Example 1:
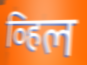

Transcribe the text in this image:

व्हिल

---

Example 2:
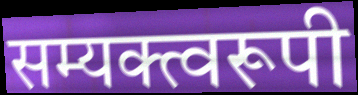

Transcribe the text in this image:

सम्यक्त्वरूपी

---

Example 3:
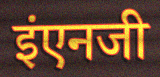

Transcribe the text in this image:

इंएनजी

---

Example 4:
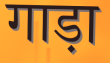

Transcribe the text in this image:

गाड़ा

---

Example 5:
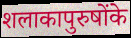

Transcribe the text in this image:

शलाकापुरुषोंके